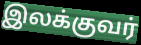
இலக்குவர்